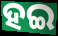
ହଇ